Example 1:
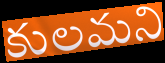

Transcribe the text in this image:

కులమని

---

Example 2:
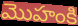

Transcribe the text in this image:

మొహంకి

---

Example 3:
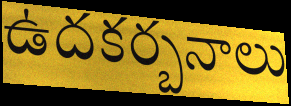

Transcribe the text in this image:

ఉదకర్బనాలు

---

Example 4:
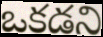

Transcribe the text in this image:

ఒకడని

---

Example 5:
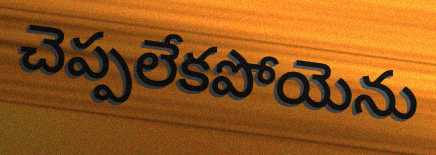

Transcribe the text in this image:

చెప్పలేకపోయెను